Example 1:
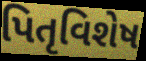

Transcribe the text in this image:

પિતૃવિશેષ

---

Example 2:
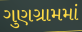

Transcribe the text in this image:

ગુણગ્રામમાં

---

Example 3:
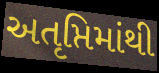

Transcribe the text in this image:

અતૃપ્તિમાંથી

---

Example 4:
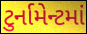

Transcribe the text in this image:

ટુર્નામેન્ટમાં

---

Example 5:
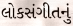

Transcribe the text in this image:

લોકસંગીતનું